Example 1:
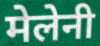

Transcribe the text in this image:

मेलेनी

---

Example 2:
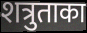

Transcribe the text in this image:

शत्रुताका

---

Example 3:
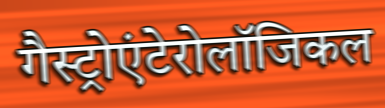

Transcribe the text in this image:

गैस्ट्रोएंटेरोलॉजिकल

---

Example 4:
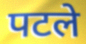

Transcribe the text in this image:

पटले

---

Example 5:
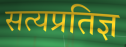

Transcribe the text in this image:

सत्यप्रतिज्ञ